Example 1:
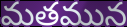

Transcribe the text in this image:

మతమున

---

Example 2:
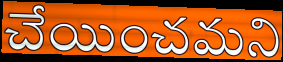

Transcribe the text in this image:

చేయించమని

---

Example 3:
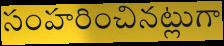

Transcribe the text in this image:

సంహరించినట్లుగా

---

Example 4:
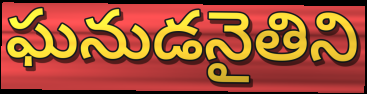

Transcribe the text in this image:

ఘనుడనైతిని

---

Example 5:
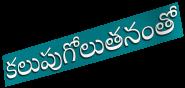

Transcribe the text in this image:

కలుపుగోలుతనంతో